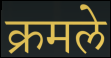
क्रमले